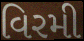
વિરમી